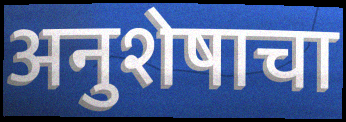
अनुशेषाचा